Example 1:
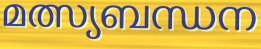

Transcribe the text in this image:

മത്സ്യബന്ധന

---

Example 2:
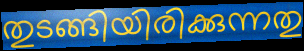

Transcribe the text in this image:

തുടങ്ങിയിരിക്കുന്നതു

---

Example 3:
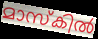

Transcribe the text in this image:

മാസ്കിൽ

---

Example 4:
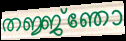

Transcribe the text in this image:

തജ്ജ്ഞോ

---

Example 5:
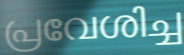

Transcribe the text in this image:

പ്രവേശിച്ച